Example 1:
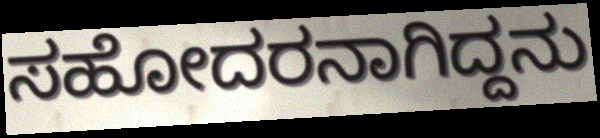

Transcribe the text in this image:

ಸಹೋದರನಾಗಿದ್ದನು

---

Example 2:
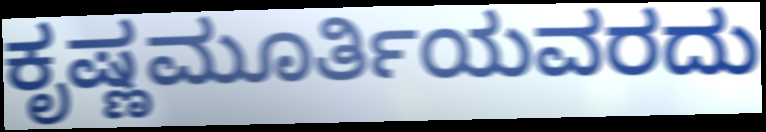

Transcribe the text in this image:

ಕೃಷ್ಣಮೂರ್ತಿಯವರದು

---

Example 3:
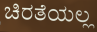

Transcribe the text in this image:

ಚಿರತೆಯಲ್ಲ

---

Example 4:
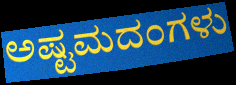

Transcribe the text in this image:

ಅಷ್ಟಮದಂಗಳು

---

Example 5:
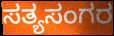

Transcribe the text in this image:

ಸತ್ಯಸಂಗರ